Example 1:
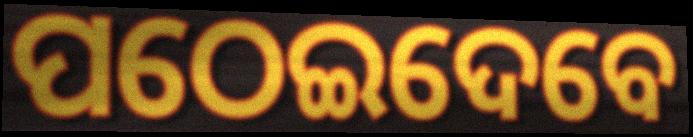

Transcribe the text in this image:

ପଠେଇଦେବେ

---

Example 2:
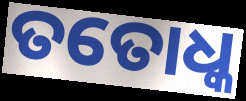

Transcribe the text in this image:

ତତୋଧ୍କ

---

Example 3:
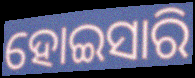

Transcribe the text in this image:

ହୋଇସାରି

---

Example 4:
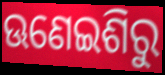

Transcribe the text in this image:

ଊଣେଇଶିରୁ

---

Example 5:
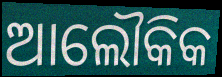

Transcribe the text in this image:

ଆଲୌକିକ